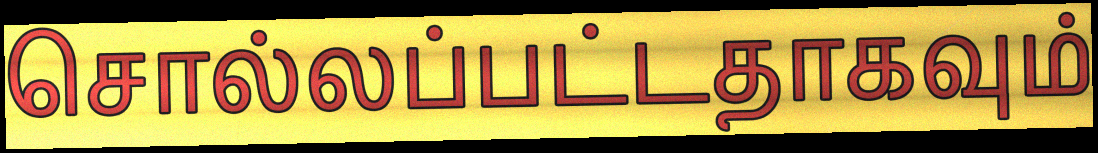
சொல்லப்பட்டதாகவும்